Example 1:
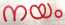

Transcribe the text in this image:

നയം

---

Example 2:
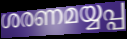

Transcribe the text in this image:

ശരണമയ്യപ്പ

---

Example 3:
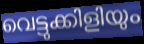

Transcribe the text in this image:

വെട്ടുക്കിളിയും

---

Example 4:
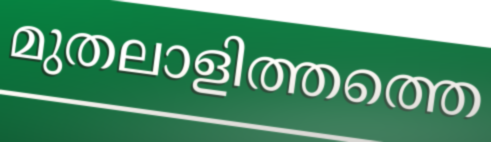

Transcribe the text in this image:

മുതലാളിത്തത്തെ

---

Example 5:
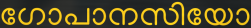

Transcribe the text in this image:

ഗോപാനസിയോ